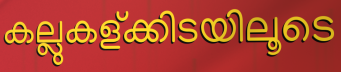
കല്ലുകള്ക്കിടയിലൂടെ